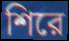
শিরে